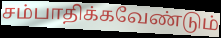
சம்பாதிக்கவேண்டும்